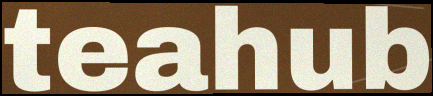
teahub